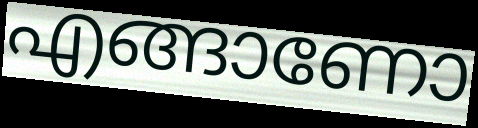
എങ്ങാണോ